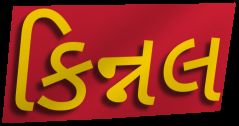
કિન્નલ